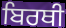
ਬਿਰਥੀ